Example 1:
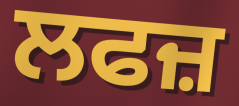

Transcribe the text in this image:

ਲਫਜ਼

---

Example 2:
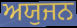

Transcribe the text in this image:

ਅਯੁਜਨ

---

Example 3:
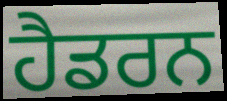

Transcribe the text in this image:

ਹੈਡਰਨ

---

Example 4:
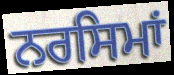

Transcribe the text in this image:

ਨਰਸਿਮਾਂ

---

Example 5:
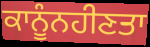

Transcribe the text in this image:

ਕਾਨੂੰਨਹੀਣਤਾ